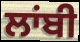
ਲਾਂਬੀ